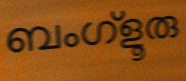
ബംഗ്ളൂരു